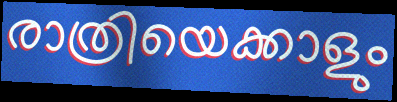
രാത്രിയെക്കാളും